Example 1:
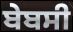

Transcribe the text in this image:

ਬੇਬਸੀ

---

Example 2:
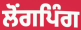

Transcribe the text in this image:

ਲੋਂਗਪਿੰਗ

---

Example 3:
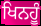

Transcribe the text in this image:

ਖਿਨਹੂੰ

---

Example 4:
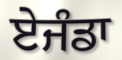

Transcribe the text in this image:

ਏਜੰਡਾ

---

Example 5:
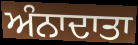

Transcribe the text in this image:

ਅੰਨਾਦਾਤਾ